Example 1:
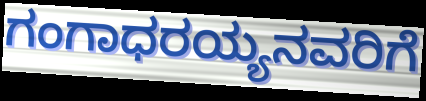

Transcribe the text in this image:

ಗಂಗಾಧರಯ್ಯನವರಿಗೆ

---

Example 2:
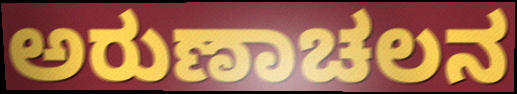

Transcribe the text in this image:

ಅರುಣಾಚಲನ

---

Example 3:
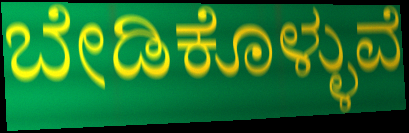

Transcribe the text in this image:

ಬೇಡಿಕೊಳ್ಳುವೆ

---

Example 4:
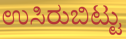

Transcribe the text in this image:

ಉಸಿರುಬಿಟ್ಟು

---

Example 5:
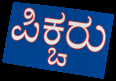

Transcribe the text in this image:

ಪಿಕ್ಚರು